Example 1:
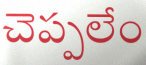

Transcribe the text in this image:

చెప్పలేం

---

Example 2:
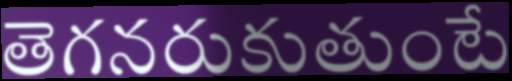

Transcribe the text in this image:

తెగనరుకుతుంటే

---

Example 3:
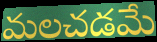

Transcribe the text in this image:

మలచడమే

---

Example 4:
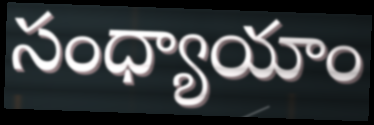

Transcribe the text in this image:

సంధ్యాయాం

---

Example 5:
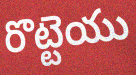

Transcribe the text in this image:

రొట్టెయు